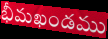
భీమఖండము